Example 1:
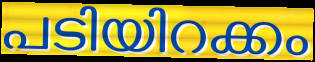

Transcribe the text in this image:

പടിയിറക്കം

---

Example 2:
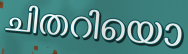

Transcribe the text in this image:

ചിതറിയൊ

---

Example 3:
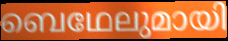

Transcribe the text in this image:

ബെഥേലുമായി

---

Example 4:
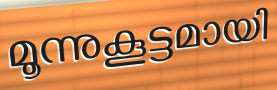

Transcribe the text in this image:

മൂന്നുകൂട്ടമായി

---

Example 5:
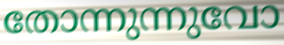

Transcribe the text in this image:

തോന്നുന്നുവോ